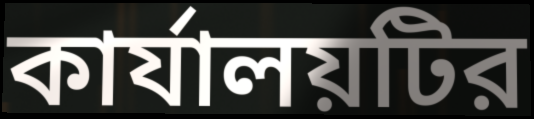
কার্যালয়টির